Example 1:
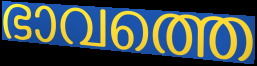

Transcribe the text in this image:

ഭാവത്തെ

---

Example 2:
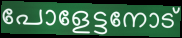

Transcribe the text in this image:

പോളേട്ടനോട്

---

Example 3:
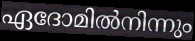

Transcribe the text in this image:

ഏദോമിൽനിന്നും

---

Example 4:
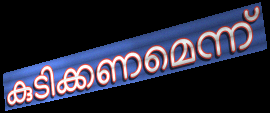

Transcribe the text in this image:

കുടിക്കണമെന്ന്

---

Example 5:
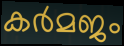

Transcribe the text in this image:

കർമജം